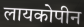
लायकोपीन